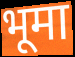
भूमा